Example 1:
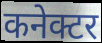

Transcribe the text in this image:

कनेक्टर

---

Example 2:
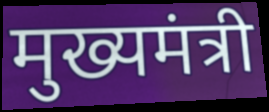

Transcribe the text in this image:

मुख्यमंत्री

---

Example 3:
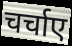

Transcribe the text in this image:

चर्चाए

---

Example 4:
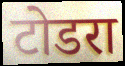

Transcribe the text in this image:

टोडरा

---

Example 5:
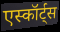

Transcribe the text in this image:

एस्कॉर्ट्स